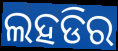
ଲହଡିର